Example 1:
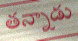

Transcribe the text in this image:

తన్నాడు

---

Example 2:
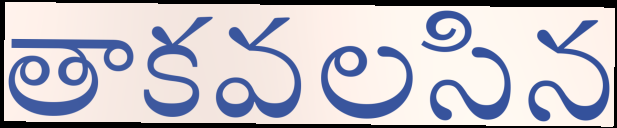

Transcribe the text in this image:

తాకవలసిన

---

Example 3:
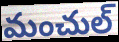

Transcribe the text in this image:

మంచుల్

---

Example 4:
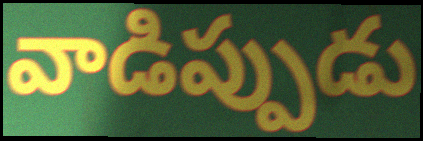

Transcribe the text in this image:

వాడిప్పుడు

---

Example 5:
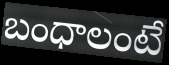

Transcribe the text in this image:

బంధాలంటే